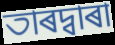
তাৰদ্বাৰা